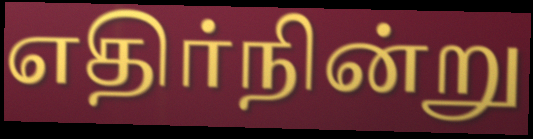
எதிர்நின்று